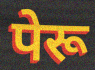
पेरू